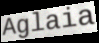
Aglaia